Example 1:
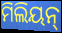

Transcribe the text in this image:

ମିଲିୟନ୍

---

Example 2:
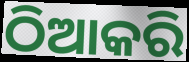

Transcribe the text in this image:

ଠିଆକରି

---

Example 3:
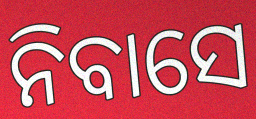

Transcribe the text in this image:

ନିବାସେ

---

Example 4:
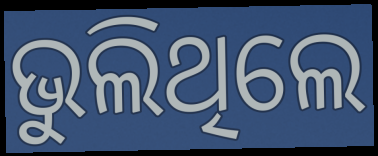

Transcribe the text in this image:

ଭୁଲିଥିଲେ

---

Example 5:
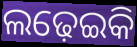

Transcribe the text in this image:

ଲଢ଼େଇକି